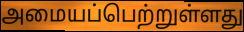
அமையப்பெற்றுள்ளது